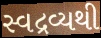
સ્વદ્રવ્યથી